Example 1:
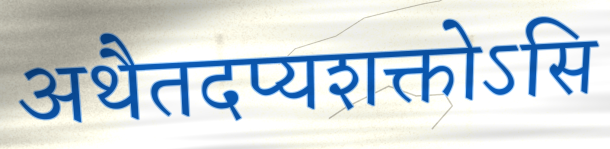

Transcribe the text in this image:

अथैतदप्यशक्तोऽसि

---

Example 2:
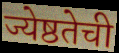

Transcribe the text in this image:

ज्येष्ठतेची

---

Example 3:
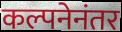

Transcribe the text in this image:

कल्पनेनंतर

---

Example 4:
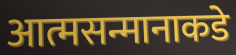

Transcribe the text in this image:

आत्मसन्मानाकडे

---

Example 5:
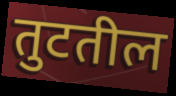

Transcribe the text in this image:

तुटतील